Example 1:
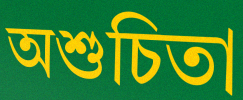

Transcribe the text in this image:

অশুচিতা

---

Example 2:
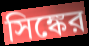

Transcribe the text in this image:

সিঙ্কের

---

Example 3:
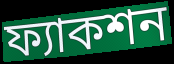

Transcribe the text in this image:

ফ্যাকশন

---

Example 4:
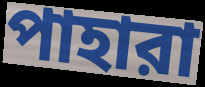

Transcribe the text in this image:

পাহারা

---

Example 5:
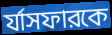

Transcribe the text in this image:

র্যাসফারকে